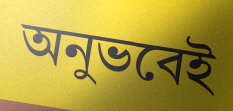
অনুভবেই